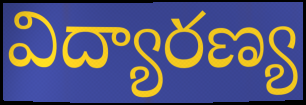
విద్యారణ్య